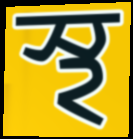
স্থ